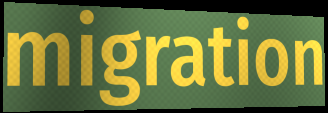
migration